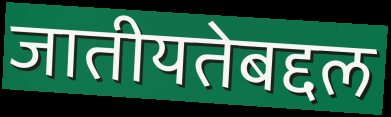
जातीयतेबद्दल